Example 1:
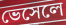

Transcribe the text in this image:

ভেসেলে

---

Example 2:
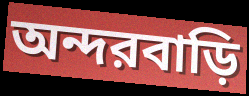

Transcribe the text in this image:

অন্দরবাড়ি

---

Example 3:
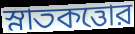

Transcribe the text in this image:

স্নাতকত্তোর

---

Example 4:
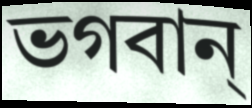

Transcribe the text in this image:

ভগবান্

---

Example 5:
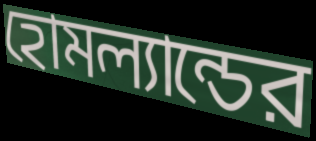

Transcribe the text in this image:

হোমল্যান্ডের